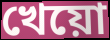
খেয়ো